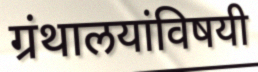
ग्रंथालयांविषयी